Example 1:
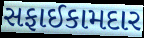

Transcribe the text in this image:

સફાઈકામદાર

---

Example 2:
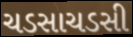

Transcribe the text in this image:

ચડસાચડસી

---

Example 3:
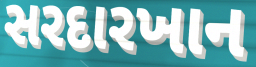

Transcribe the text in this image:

સરદારખાન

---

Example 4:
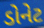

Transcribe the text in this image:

ડોનેટ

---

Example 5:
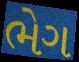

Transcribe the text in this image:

ભેગ